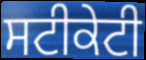
ਸਟੀਕੇਟੀ